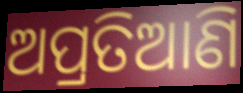
ଅପ୍ରତିଆଣି